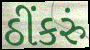
ઠીંકરું